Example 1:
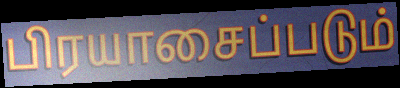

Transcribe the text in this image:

பிரயாசைப்படும்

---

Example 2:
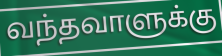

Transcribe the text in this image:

வந்தவாளுக்கு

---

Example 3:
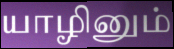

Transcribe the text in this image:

யாழினும்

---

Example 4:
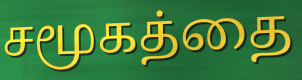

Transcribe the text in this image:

சமூகத்தை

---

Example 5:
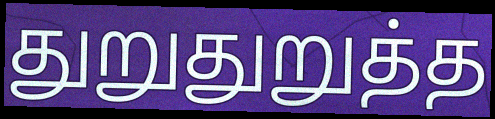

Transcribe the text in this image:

துறுதுறுத்த